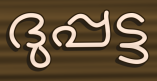
ദുപ്പട്ട